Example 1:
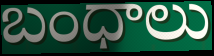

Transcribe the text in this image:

బంధాలు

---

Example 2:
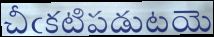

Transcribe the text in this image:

చీఁకటిపడుటయె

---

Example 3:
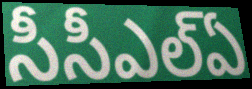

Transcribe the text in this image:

సీసీఎల్ఏ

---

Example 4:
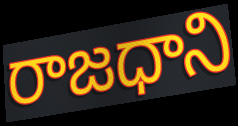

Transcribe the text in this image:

రాజధాని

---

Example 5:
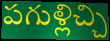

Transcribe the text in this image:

పగుళ్లిచ్చి